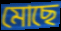
মোছে